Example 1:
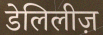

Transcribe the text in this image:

डेलिलीज़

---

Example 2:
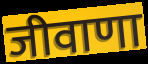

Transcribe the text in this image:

जीवाणा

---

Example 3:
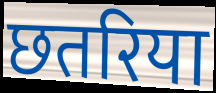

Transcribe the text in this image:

छतरिया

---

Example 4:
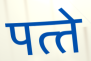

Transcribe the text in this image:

पत्‍ते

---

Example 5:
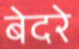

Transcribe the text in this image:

बेदरे